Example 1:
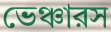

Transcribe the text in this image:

ভেঞ্চারস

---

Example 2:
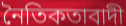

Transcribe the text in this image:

নৈতিকতাবাদী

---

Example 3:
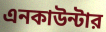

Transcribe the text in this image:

এনকাউন্টার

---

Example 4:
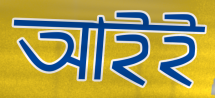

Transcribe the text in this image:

আইই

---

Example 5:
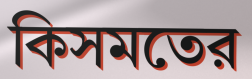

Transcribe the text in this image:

কিসমতের